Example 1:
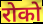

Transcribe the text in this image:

रोको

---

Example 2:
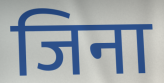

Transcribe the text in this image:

जिना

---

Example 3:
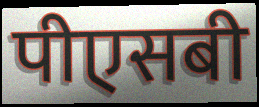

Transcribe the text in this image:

पीएसबी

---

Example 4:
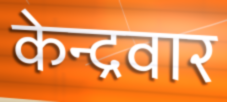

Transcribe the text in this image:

केन्‍द्रवार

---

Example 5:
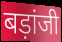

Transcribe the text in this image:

बड़ांजी